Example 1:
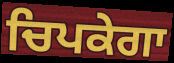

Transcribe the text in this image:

ਚਿਪਕੇਗਾ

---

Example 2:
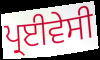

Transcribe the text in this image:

ਪ੍ਰਈਵੇਸੀ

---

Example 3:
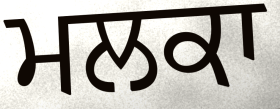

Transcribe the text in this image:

ਮਲਕਾ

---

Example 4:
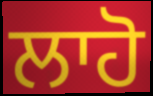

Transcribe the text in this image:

ਲਾਹੋ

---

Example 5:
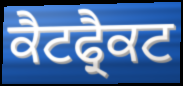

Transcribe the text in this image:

ਕੈਟਫ੍ਰੈਕਟ